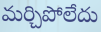
మర్చిపోలేదు